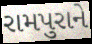
રામપુરાને